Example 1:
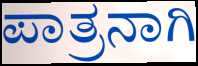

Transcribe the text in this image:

ಪಾತ್ರನಾಗಿ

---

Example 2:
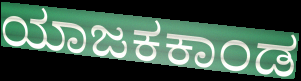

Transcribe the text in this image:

ಯಾಜಕಕಾಂಡ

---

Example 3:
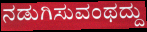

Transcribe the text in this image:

ನಡುಗಿಸುವಂಥದ್ದು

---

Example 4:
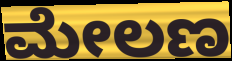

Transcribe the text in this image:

ಮೇಲಣ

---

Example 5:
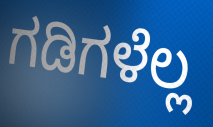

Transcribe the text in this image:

ಗಡಿಗಳೆಲ್ಲ